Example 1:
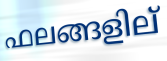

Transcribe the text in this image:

ഫലങ്ങളില്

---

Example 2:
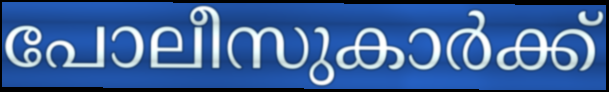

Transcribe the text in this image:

പോലീസുകാർക്ക്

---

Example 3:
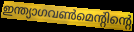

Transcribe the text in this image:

ഇന്ത്യാഗവൺമെന്റിന്റെ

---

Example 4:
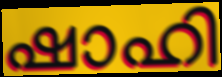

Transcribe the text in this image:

ഷാഹി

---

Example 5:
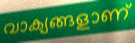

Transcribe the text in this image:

വാക്യങ്ങളാണ്